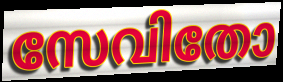
സേവിതോ